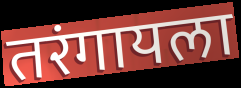
तरंगायला